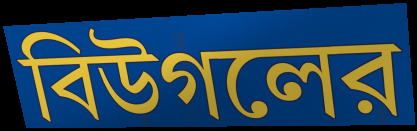
বিউগলের